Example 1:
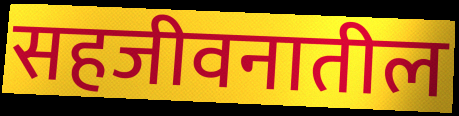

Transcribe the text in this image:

सहजीवनातील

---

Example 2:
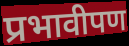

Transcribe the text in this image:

प्रभावीपण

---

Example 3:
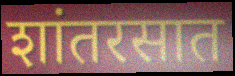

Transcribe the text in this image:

शांतरसात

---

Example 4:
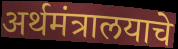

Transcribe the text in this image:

अर्थमंत्रालयाचे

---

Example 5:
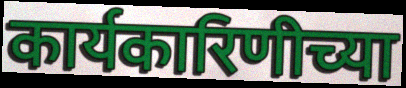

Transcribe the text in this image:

कार्यकारिणीच्या